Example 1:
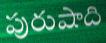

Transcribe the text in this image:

పురుషాది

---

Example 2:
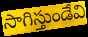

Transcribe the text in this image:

సాగిస్తుండేవి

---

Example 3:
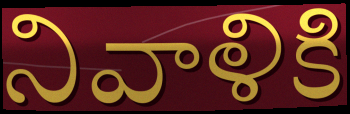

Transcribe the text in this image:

నివాళికి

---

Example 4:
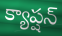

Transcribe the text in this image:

క్యాప్షన్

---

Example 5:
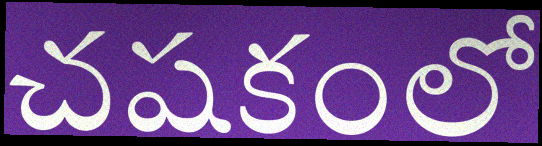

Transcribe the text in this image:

చషకంలో